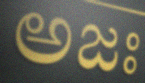
అజః